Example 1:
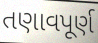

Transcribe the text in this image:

તણાવપૂર્ણ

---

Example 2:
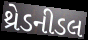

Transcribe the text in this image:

થ્રેડનીડલ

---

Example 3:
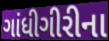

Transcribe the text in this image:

ગાંધીગીરીના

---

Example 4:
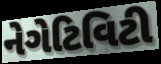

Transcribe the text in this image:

નેગેટિવિટી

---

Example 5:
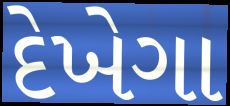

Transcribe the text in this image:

દેખેગા